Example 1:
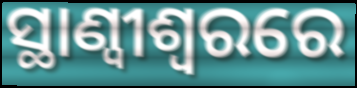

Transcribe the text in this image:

ସ୍ଥାଣ୍ୱୀଶ୍ୱରରେ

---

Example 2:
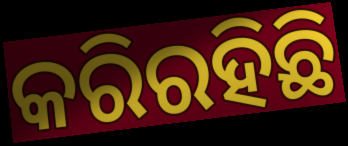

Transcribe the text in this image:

କରିରହିଛି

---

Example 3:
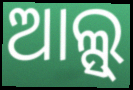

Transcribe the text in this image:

ଆଲ୍ସ୍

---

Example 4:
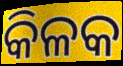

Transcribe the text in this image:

କିଳକ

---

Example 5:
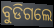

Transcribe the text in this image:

ବୁଡିଗଲେ